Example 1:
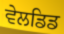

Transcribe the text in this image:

ਵੇਲਡਿਡ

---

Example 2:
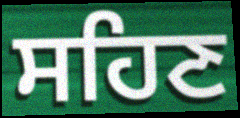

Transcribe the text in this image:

ਸਹਿਣ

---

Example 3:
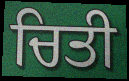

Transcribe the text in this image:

ਚਿਤੀ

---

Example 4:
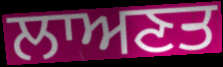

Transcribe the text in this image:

ਲਾਅਣਤ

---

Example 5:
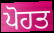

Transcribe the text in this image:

ਪੋਹਤ